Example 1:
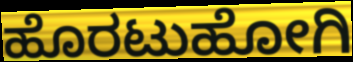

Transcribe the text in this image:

ಹೊರಟುಹೋಗಿ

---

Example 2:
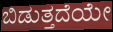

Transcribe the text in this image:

ಬಿಡುತ್ತದೆಯೇ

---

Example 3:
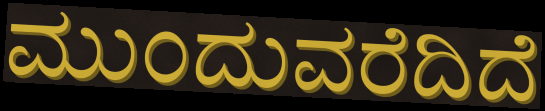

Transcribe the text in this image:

ಮುಂದುವರೆದಿದೆ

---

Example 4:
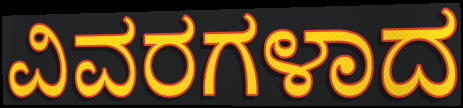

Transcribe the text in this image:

ವಿವರಗಳಾದ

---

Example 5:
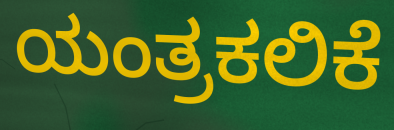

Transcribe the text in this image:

ಯಂತ್ರಕಲಿಕೆ